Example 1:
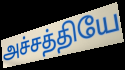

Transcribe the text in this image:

அச்சத்தியே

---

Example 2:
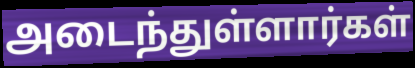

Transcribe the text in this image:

அடைந்துள்ளார்கள்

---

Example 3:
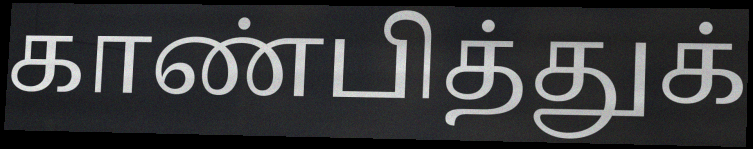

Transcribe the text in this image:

காண்பித்துக்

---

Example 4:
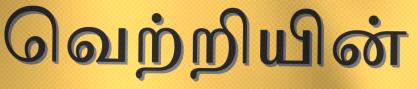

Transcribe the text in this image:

வெற்றியின்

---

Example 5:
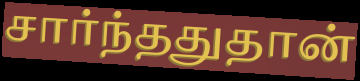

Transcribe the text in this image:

சார்ந்ததுதான்